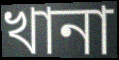
খানা